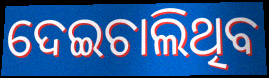
ଦେଇଚାଲିଥିବ